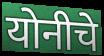
योनीचे